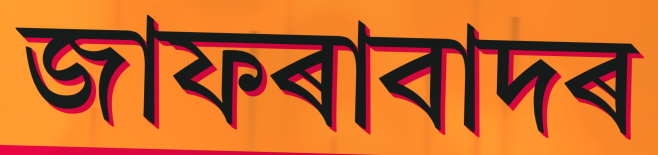
জাফৰাবাদৰ